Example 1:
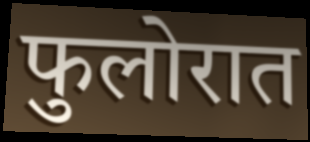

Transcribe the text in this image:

फुलोरात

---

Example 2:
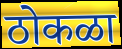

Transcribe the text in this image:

ठोकळा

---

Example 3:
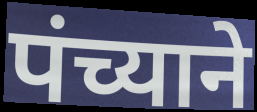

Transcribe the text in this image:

पंच्याने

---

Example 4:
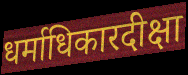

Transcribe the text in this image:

धर्माधिकारदीक्षा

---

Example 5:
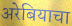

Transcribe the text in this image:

अरेबियाचा